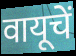
वायूचें